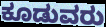
ಕೂಡುವರು